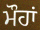
ਮੌਹਾਂ